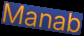
Manab